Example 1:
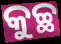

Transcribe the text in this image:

କୁଚ୍ଛ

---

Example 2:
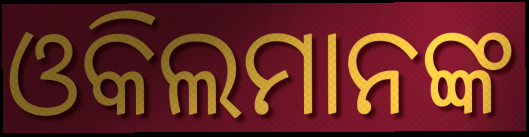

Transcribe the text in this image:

ଓକିଲମାନଙ୍କ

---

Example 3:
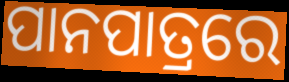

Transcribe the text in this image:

ପାନପାତ୍ରରେ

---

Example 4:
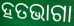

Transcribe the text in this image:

ହତଭାଗା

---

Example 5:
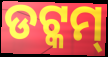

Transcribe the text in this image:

ଡଟ୍କମ୍